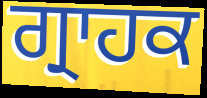
ਗ੍ਰਾਹਕ